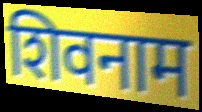
शिवनाम